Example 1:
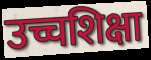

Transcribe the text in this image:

उच्चशिक्षा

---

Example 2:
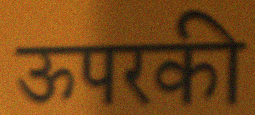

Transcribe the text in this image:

ऊपरकी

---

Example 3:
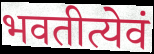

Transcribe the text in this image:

भवतीत्येवं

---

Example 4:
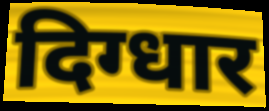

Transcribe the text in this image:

दिग्धार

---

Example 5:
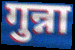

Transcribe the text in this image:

गुन्ना